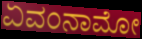
ಏವಂನಾಮೋ